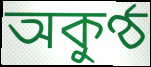
অকুণ্ঠ